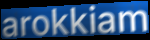
arokkiam